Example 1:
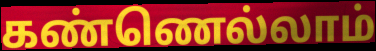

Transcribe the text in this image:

கண்ணெல்லாம்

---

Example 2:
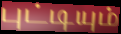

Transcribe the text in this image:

புட்டியும்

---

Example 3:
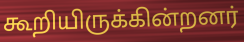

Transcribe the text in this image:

கூறியிருக்கின்றனர்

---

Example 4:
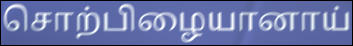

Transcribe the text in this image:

சொற்பிழையானாய்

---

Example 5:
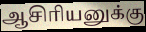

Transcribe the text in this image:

ஆசிரியனுக்கு